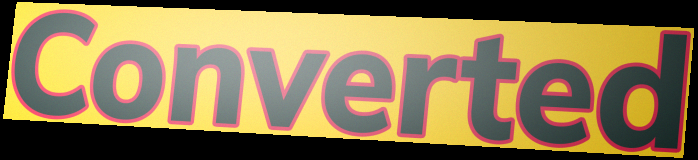
Converted